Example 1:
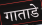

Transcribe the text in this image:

गाताडे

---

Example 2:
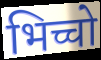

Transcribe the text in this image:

भिच्चो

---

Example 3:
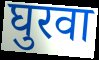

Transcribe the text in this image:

घुरवा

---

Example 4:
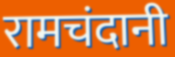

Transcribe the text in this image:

रामचंदानी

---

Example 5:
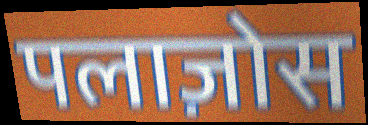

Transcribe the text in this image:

पलाज़ोस